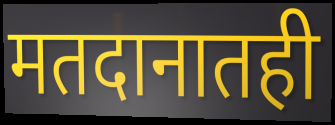
मतदानातही